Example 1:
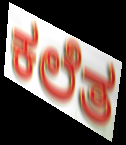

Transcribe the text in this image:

ಕಲೆತ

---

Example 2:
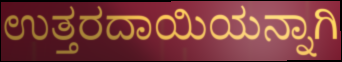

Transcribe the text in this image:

ಉತ್ತರದಾಯಿಯನ್ನಾಗಿ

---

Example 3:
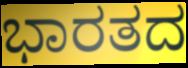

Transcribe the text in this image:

ಭಾರತದ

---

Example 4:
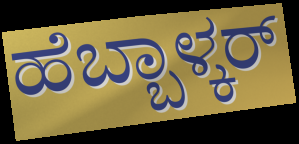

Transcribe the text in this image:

ಹೆಬ್ಬಾಳ್ಕರ್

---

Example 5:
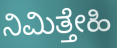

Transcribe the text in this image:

ನಿಮಿತ್ತೇಹಿ